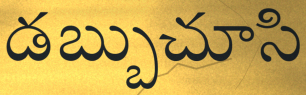
డబ్బుచూసి